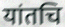
यांतचि